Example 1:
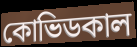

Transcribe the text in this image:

কোভিডকাল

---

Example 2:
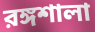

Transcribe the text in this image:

রঙ্গশালা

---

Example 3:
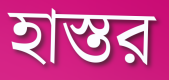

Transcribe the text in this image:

হাস্তর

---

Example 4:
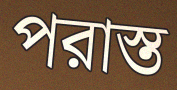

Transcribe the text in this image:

পরাস্ত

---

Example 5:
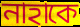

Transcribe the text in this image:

নাহাকে